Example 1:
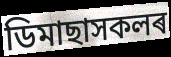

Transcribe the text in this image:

ডিমাছাসকলৰ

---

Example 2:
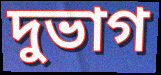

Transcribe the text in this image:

দুভাগ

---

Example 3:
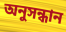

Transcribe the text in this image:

অনুসন্ধান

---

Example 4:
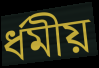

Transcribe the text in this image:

ৰ্ধমীয়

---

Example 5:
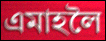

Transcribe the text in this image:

এমাহলৈ